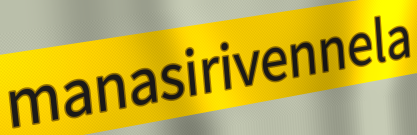
manasirivennela